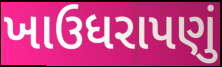
ખાઉધરાપણું